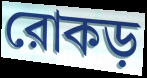
রোকড়